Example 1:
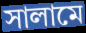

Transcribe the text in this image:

সালামে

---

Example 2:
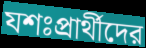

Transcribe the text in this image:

যশঃপ্রার্থীদের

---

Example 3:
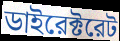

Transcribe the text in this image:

ডাইরেক্টরেট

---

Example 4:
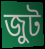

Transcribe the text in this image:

জুট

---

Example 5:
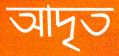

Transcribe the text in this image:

আদৃত